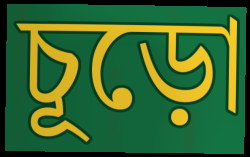
চূড়ো